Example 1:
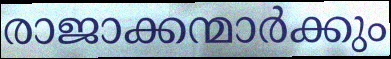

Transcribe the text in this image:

രാജാക്കന്മാർക്കും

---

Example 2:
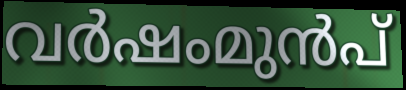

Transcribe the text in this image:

വർഷംമുൻപ്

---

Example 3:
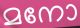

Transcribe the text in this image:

മനോ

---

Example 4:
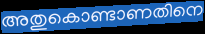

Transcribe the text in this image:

അതുകൊണ്ടാണതിനെ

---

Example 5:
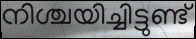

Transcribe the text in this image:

നിശ്ചയിച്ചിട്ടുണ്ട്